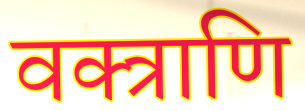
वक्त्राणि